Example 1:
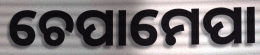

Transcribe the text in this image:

ଚେପାମେପା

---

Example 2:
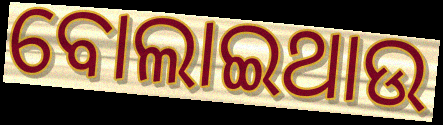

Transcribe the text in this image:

ବୋଲାଇଥାଉ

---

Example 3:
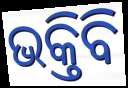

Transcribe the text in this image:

ଭକ୍ତିବି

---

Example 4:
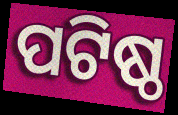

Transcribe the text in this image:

ପଟିଷ୍ଠ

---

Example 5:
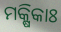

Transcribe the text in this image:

ମକ୍ଷିକାଃ